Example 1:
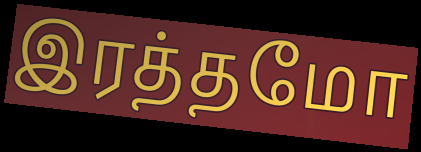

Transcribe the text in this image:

இரத்தமோ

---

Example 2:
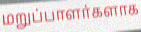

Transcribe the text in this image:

மறுப்பாளர்களாக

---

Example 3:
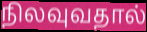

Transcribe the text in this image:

நிலவுவதால்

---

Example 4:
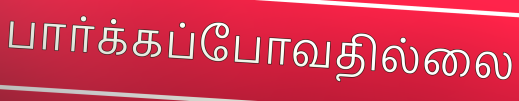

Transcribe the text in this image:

பார்க்கப்போவதில்லை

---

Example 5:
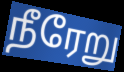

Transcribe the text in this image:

நீரேறு